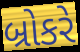
બ્રોકરે